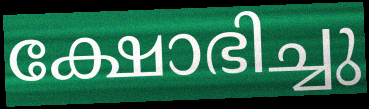
ക്ഷോഭിച്ചു